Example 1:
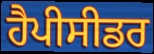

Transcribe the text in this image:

ਹੈਪੀਸੀਡਰ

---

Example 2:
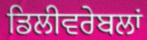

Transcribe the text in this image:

ਡਿਲੀਵਰੇਬਲਾਂ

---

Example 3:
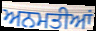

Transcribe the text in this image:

ਅਨਮਤੀਆਂ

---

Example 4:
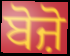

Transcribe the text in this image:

ਬੋਜ਼ੋ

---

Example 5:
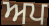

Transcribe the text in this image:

ਅਪ